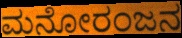
ಮನೋರಂಜನ